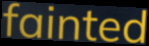
fainted